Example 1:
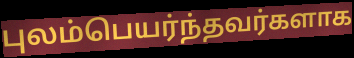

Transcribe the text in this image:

புலம்பெயர்ந்தவர்களாக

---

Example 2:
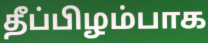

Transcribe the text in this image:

தீப்பிழம்பாக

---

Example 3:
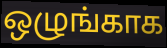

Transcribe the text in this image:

ஒழுங்காக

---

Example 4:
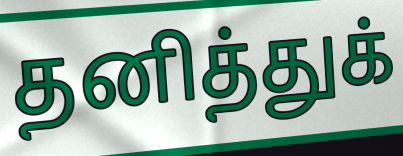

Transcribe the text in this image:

தனித்துக்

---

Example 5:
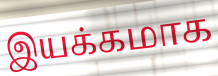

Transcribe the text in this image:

இயக்கமாக